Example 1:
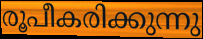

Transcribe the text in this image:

രൂപീകരിക്കുന്നു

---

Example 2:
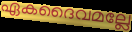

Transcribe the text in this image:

ഏകദൈവമല്ലേ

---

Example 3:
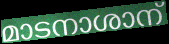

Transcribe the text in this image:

മാടനാശാന്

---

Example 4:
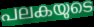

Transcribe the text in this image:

പലകയുടെ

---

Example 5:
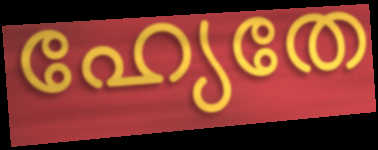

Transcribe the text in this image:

ഹ്യേതേ